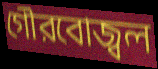
গৌরবোজ্বল